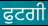
ਫੁਟਗੀ